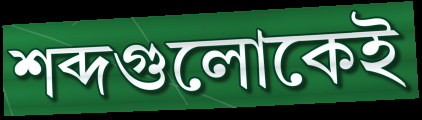
শব্দগুলোকেই